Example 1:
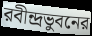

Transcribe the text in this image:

রবীন্দ্রভুবনের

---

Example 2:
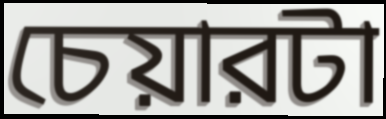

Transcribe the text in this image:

চেয়ারটা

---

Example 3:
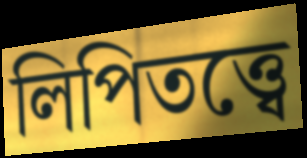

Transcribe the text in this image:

লিপিতত্ত্বে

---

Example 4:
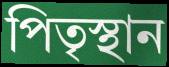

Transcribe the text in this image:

পিতৃস্থান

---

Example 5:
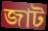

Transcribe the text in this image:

জাট